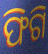
ଫିଗି